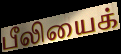
பீலியைக்